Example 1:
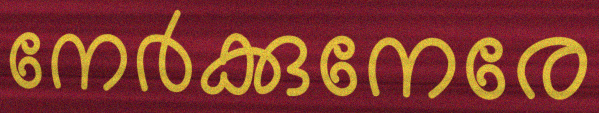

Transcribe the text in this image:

നേർക്കുനേരേ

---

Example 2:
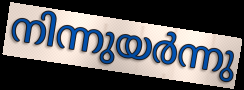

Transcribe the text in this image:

നിന്നുയർന്നു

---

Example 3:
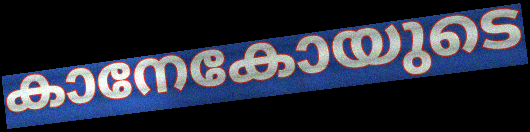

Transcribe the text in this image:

കാനേകോയുടെ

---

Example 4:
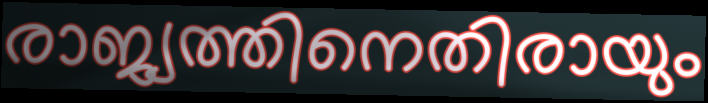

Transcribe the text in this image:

രാജ്യത്തിനെതിരായും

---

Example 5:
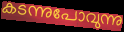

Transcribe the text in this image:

കടന്നുപോവുന്നു